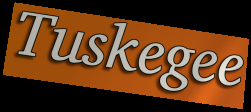
Tuskegee